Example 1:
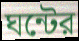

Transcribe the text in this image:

ঘন্টের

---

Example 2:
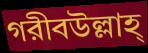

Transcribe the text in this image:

গরীবউল্লাহ্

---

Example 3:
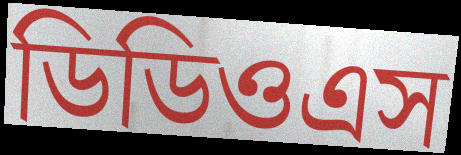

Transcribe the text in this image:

ডিডিওএস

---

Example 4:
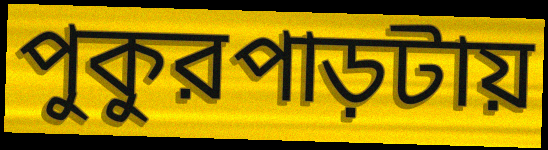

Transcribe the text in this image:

পুকুরপাড়টায়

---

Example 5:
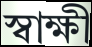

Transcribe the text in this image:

স্বাক্ষী